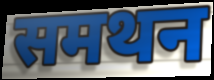
समथन